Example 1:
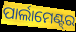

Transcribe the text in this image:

ପାର୍ଲାମେଣ୍ଟ୍‌ର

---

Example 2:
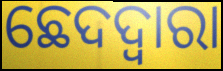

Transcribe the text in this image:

ଛେଦଦ୍ୱାରା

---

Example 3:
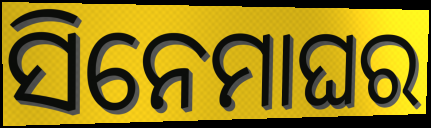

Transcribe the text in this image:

ସିନେମାଘର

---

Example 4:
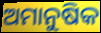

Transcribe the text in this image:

ଅମାନୁଷିକ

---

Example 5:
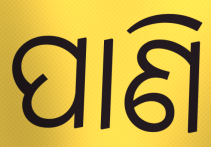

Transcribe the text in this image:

ପାଣି